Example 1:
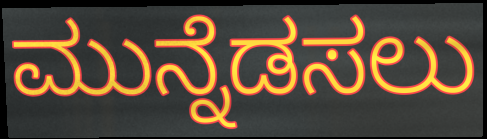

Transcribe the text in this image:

ಮುನ್ನೆಡಸಲು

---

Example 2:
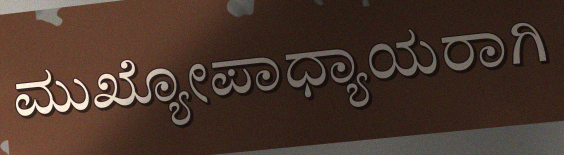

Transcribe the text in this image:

ಮುಖ್ಯೋಪಾಧ್ಯಾಯರಾಗಿ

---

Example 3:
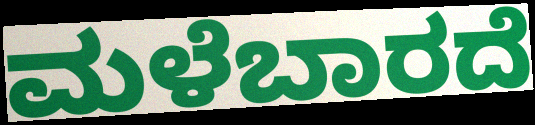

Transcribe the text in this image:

ಮಳೆಬಾರದೆ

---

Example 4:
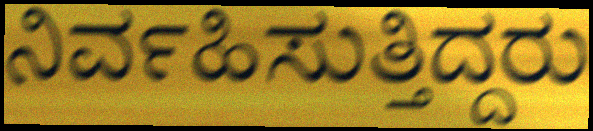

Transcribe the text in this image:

ನಿರ್ವಹಿಸುತ್ತಿದ್ದರು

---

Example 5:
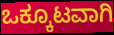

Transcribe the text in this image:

ಒಕ್ಕೂಟವಾಗಿ